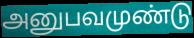
அனுபவமுண்டு